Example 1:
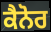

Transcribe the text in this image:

ਕੈਨੋਰ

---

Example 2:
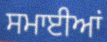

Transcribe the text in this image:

ਸਮਾਈਆਂ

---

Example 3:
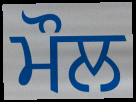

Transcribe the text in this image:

ਮੌਲ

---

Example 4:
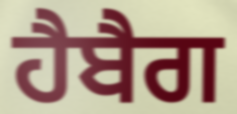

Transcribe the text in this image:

ਹੈਬੈਗ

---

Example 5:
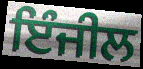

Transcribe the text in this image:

ਇੰਜੀਲ